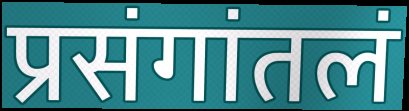
प्रसंगांतलं